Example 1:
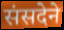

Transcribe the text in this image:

संसदेने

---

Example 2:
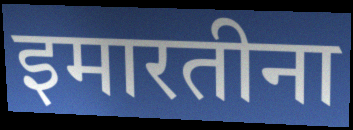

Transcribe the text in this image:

इमारतीना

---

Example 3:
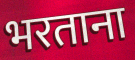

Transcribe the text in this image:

भरताना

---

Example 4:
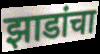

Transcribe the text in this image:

झाडांचा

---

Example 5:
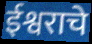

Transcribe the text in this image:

ईश्वराचे